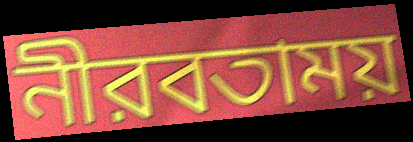
নীরবতাময়